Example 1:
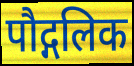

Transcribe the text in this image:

पौद्गलिक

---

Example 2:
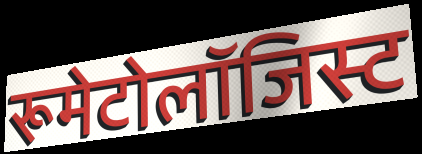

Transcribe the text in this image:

रूमेटोलॉजिस्ट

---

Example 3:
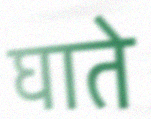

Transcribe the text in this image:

घाते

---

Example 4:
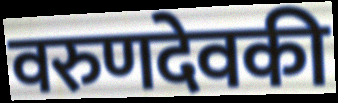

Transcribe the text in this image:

वरुणदेवकी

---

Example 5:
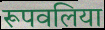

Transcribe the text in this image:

रूपवलिया